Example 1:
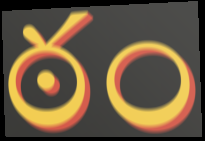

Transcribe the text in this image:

ఠం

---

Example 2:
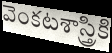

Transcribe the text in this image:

వెంకటశాస్త్రికి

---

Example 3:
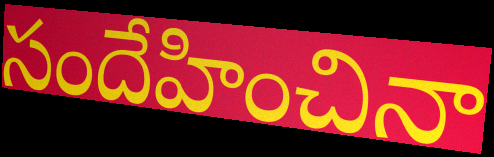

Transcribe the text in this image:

సందేహించినా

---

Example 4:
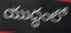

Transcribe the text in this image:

యుద్ధంలో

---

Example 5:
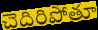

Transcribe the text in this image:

చెదిరిపోతూ